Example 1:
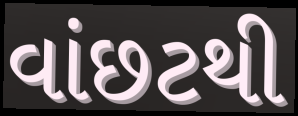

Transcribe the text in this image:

વાંછટથી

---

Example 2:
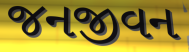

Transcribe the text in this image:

જનજીવન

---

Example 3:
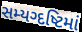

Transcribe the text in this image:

સમ્યગ્દષ્ટિમાં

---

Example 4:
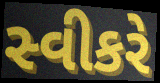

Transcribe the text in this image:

સ્વીકરે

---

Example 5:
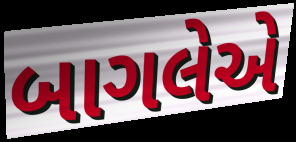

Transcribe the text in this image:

બાગલેએ